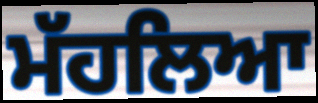
ਮੱਹਲਿਆ